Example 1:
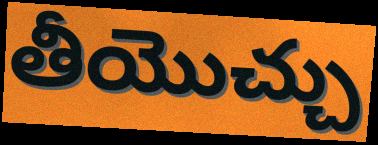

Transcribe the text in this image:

తీయొచ్చు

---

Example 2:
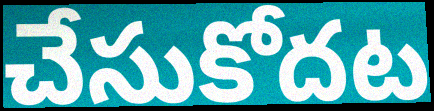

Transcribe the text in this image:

చేసుకోదట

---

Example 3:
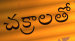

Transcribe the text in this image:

చక్రాలతో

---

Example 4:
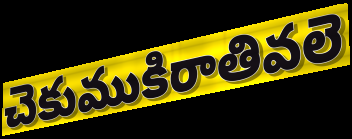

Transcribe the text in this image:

చెకుముకిరాతివలె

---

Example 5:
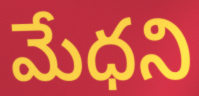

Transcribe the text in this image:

మేధని